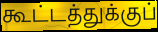
கூட்டத்துக்குப்